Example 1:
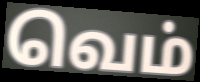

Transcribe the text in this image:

வெம்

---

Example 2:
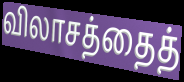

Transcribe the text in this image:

விலாசத்தைத்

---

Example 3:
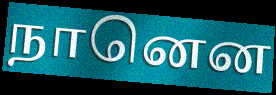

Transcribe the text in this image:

நானென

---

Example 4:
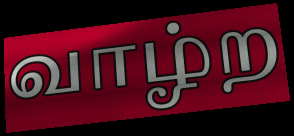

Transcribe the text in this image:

வாழ்ற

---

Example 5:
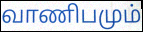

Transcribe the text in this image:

வாணிபமும்